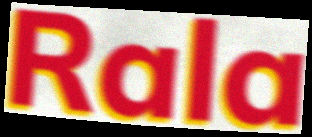
Rala